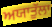
ਅਯਾਤੁੱਲਾ